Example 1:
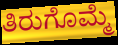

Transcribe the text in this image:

ತಿರುಗೊಮ್ಮೆ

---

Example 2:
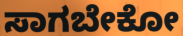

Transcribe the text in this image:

ಸಾಗಬೇಕೋ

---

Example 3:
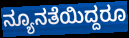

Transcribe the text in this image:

ನ್ಯೂನತೆಯಿದ್ದರೂ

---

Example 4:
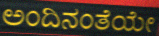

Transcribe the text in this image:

ಅಂದಿನಂತೆಯೇ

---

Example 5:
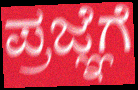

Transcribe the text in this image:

ಪ್ರಜ್ಞೆಗೆ